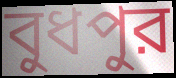
বুধপুর